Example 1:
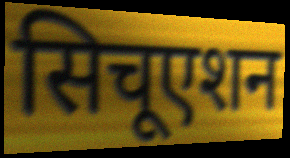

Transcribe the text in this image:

सिचूएशन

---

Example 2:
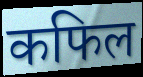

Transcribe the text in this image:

कफिल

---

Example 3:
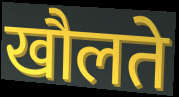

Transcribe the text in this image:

खौलते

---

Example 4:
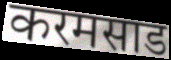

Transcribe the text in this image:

करमसाड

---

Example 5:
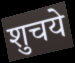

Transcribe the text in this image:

शुचये